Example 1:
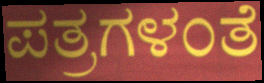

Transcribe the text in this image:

ಪತ್ರಗಳಂತೆ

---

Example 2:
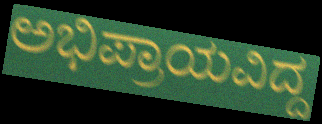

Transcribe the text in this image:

ಅಭಿಪ್ರಾಯವಿದ್ದ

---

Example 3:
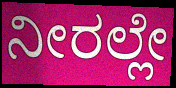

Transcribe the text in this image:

ನೀರಲ್ಲೇ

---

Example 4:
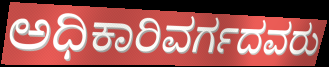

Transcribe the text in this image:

ಅಧಿಕಾರಿವರ್ಗದವರು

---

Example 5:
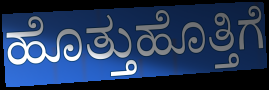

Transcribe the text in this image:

ಹೊತ್ತುಹೊತ್ತಿಗೆ